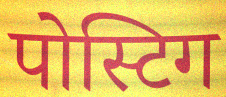
पोस्टिग